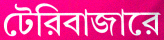
টেরিবাজারে